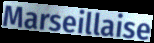
Marseillaise